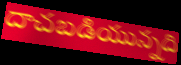
దాచబడియున్నది